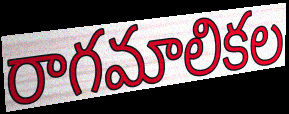
రాగమాలికల